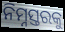
ନିମ୍ନସ୍ତରକୁ